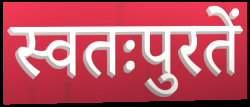
स्वतःपुरतें